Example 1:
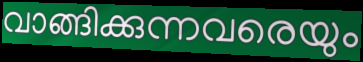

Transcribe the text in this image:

വാങ്ങിക്കുന്നവരെയും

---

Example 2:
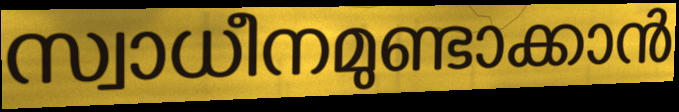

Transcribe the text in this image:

സ്വാധീനമുണ്ടാക്കാൻ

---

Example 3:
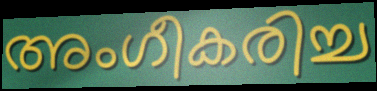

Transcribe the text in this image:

അംഗീകരിച്ച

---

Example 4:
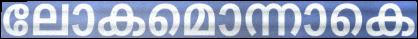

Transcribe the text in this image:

ലോകമൊന്നാകെ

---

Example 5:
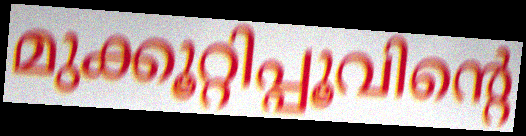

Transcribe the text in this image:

മുക്കൂറ്റിപ്പൂവിന്റെ